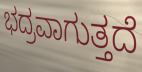
ಭದ್ರವಾಗುತ್ತದೆ